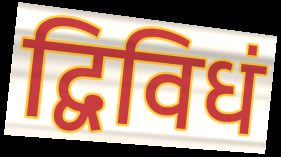
द्विविधं